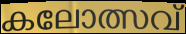
കലോത്സവ്